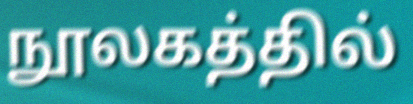
நூலகத்தில்